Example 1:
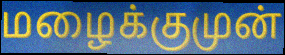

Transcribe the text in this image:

மழைக்குமுன்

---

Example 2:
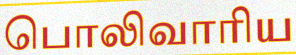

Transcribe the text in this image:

பொலிவாரிய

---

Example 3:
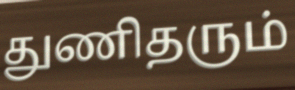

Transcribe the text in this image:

துணிதரும்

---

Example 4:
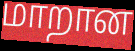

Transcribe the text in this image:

மாறான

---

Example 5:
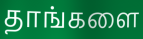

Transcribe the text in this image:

தாங்களை